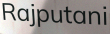
Rajputani